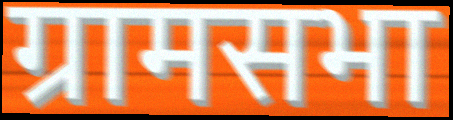
ग्रामसभा